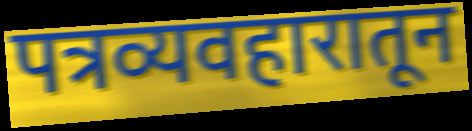
पत्रव्यवहारातून